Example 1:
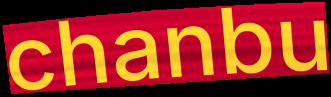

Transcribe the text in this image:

chanbu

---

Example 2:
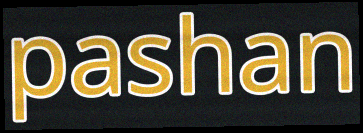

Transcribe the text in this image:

pashan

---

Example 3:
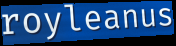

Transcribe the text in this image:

royleanus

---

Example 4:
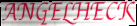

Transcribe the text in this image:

ANGELHECK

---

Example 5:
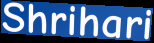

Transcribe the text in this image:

Shrihari